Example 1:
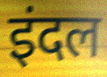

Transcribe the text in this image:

इंदल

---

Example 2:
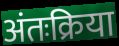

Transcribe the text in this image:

अंतःक्रिया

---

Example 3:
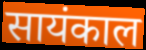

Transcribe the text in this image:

सायंकाल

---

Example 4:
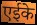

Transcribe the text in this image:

एईके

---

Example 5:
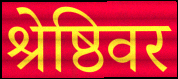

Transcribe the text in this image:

श्रेष्ठिवर